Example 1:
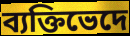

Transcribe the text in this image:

ব্যক্তিভেদে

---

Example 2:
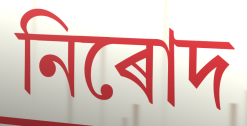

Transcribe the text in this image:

নিৰোদ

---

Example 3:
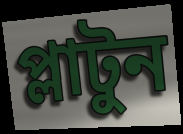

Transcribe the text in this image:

প্লাটুন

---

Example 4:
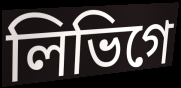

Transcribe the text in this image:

লিভিগে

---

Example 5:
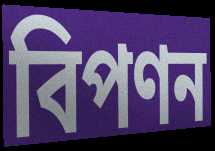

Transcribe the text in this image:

বিপণন